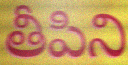
తీపిని